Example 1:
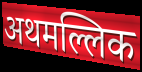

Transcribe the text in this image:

अथमल्लिक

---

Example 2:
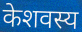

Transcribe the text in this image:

केशवस्य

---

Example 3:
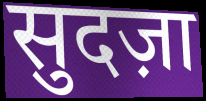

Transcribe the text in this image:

सुदज़ा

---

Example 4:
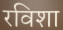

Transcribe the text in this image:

रविशा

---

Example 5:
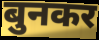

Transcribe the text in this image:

बुनकर